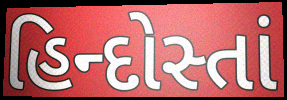
હિન્દોસ્તાં